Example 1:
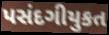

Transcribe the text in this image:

પસંદગીયુકત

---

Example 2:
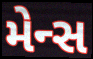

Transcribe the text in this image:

મેન્સ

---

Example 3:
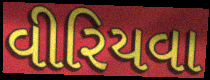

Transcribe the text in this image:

વીરિયવા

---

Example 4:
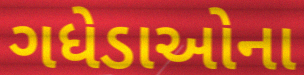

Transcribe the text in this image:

ગધેડાઓના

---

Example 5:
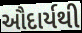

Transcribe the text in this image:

ઔદાર્યથી